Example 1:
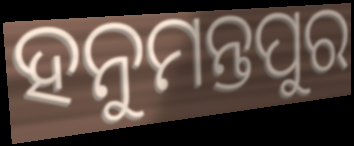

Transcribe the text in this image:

ହନୁମନ୍ତପୁର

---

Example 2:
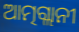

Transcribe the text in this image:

ଆତ୍ମଗ୍ଲାନୀ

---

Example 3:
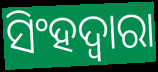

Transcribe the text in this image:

ସିଂହଦ୍ୱାରା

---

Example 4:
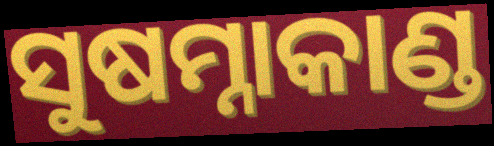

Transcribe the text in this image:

ସୁଷମ୍ନାକାଣ୍ଡ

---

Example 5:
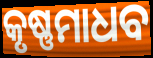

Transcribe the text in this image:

କୃଷ୍ଣମାଧବ